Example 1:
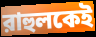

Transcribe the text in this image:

রাহুলকেই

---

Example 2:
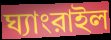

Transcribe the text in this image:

ঘ্যাংরাইল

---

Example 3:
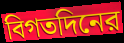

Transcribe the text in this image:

বিগতদিনের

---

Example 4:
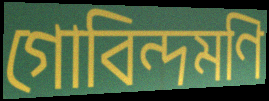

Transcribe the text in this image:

গোবিন্দমণি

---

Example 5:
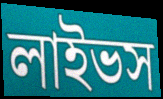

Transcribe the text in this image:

লাইভস